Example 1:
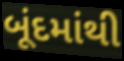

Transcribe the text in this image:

બૂંદમાંથી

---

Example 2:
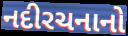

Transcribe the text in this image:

નદીરચનાનો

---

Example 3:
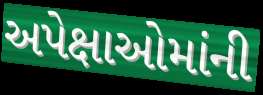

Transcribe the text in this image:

અપેક્ષાઓમાંની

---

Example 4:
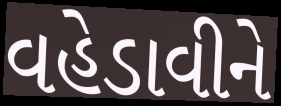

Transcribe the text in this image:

વહેડાવીને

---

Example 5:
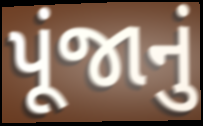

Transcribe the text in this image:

પૂંજાનું